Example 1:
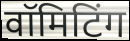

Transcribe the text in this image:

वॉमिटिंग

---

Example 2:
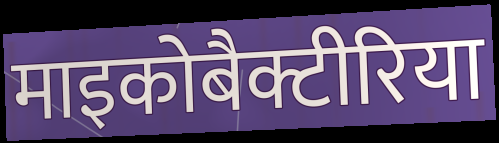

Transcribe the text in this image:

माइकोबैक्टीरिया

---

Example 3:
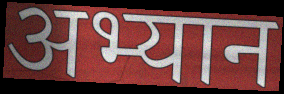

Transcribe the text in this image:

अभ्यान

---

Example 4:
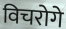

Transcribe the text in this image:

विचरोगे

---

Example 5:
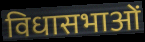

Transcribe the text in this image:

विधासभाओं